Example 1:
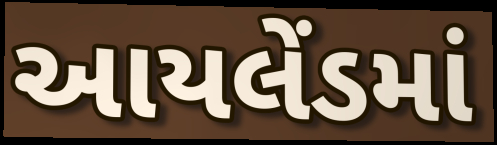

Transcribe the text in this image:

આયલેંડમાં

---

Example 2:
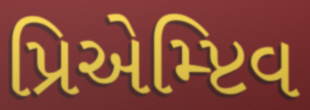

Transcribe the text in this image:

પ્રિએમ્પ્ટિવ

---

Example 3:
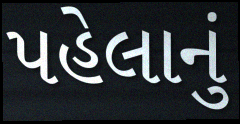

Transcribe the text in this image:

પહેલાનું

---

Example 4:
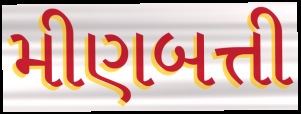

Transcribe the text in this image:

મીણબત્તી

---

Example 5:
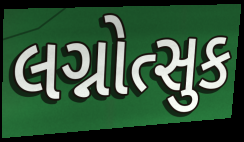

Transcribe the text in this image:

લગ્નોત્સુક